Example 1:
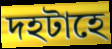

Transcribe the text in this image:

দহটাহে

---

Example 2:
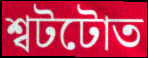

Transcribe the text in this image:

শ্বটটোত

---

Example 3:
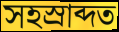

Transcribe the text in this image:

সহস্ৰাব্দত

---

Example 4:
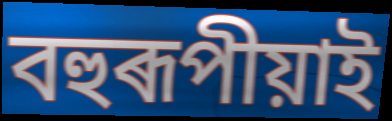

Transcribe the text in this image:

বহুৰূপীয়াই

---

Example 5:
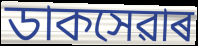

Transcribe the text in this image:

ডাকসেৱাৰ